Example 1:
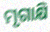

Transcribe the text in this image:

ମୃଗାକ୍ଷି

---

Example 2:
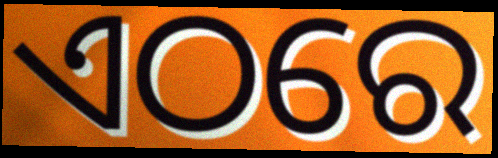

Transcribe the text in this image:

ଏଠରେ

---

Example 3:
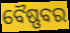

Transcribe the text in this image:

ବୈଷ୍ଣବର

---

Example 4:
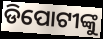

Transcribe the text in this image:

ଡିପୋଟୀଙ୍କୁ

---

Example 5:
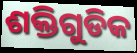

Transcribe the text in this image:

ଶକ୍ତିଗୁଡିକ